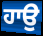
ਹਾਉ